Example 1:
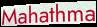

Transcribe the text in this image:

Mahathma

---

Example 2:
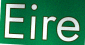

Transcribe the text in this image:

Eire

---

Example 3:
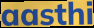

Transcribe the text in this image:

aasthi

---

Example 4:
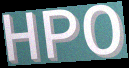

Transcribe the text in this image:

HPO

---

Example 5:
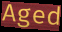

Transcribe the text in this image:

Aged